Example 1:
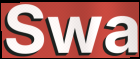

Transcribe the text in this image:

Swa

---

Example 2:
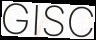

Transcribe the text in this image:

GISC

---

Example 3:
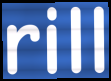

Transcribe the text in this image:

rill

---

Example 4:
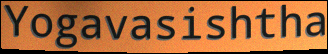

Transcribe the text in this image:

Yogavasishtha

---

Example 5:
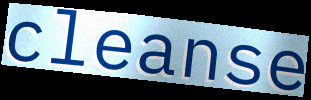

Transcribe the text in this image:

cleanse